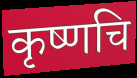
कृष्णचि